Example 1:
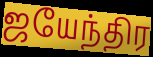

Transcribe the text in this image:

ஜயேந்திர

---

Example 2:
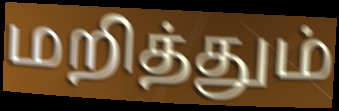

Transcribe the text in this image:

மறித்தும்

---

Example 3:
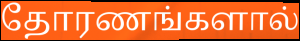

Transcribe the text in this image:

தோரணங்களால்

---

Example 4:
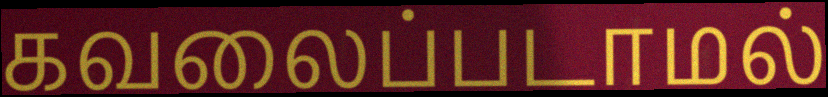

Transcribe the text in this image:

கவலைப்படாமல்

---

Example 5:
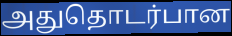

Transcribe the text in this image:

அதுதொடர்பான